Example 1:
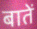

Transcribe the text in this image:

बातें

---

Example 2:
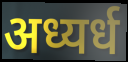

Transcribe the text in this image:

अध्यर्ध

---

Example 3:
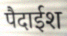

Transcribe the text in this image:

पैदाईश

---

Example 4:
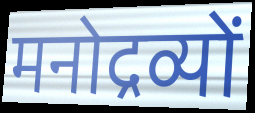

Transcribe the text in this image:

मनोद्रव्यों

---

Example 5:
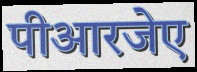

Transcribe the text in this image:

पीआरजेए